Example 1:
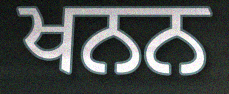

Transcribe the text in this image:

ਖਨਨ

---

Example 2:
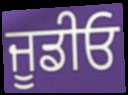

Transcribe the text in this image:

ਜੂਡੀਓ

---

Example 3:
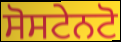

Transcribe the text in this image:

ਸੋਸਟੇਨਟੋ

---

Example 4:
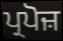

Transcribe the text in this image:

ਪ੍ਰਪੋਜ਼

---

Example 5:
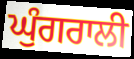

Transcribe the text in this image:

ਘੁੰਗਰਾਲੀ